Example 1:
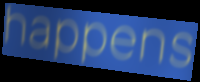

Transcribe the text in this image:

happens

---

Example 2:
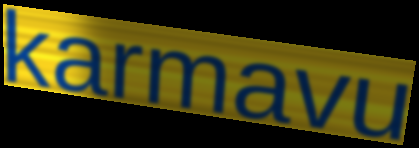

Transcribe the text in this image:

karmavu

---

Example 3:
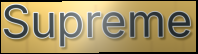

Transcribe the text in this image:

Supreme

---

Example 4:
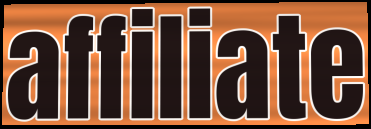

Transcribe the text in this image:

affiliate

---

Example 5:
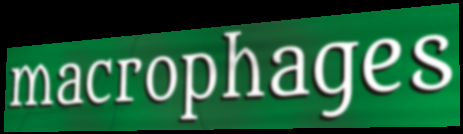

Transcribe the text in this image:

macrophages